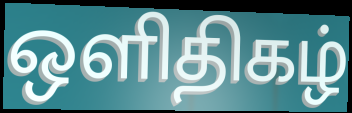
ஒளிதிகழ்